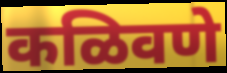
कळिवणे